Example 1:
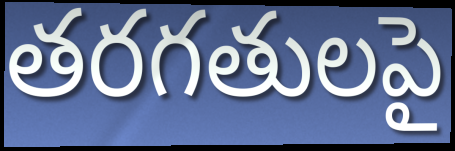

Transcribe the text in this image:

తరగతులపై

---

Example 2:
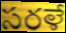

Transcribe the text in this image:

సరళే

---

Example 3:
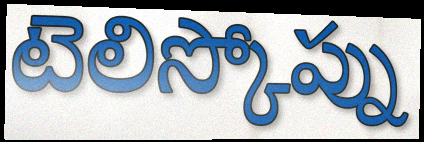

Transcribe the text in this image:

టెలిస్కోప్ను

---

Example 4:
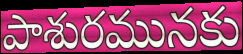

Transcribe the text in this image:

పాశురమునకు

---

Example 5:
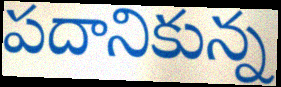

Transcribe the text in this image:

పదానికున్న